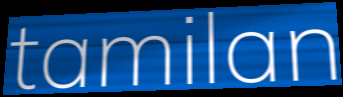
tamilan